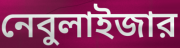
নেবুলাইজার